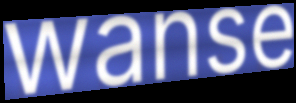
wanse